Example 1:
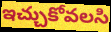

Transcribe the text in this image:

ఇచ్చుకోవలసి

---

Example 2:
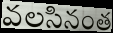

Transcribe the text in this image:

వలసినంత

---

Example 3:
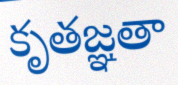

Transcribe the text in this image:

కృతజ్ఞతా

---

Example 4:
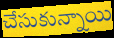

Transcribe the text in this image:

చేసుకున్నాయి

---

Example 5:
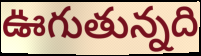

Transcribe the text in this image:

ఊగుతున్నది